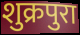
शुक्रपुरा